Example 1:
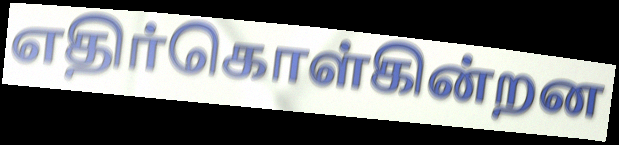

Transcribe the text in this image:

எதிர்கொள்கின்றன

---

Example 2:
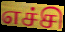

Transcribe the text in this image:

எச்சி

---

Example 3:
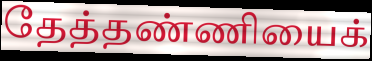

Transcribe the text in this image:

தேத்தண்ணியைக்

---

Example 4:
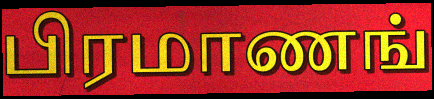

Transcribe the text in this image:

பிரமாணங்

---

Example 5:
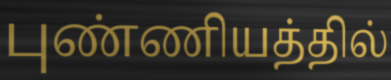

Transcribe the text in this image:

புண்ணியத்தில்